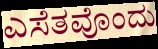
ಎಸೆತವೊಂದು